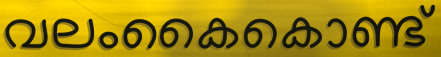
വലംകൈകൊണ്ട്